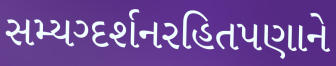
સમ્યગ્દર્શનરહિતપણાને